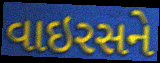
વાઇરસને